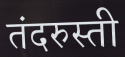
तंदरुस्ती